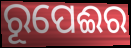
ରୂପେଈର